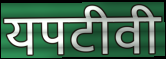
यपटीवी